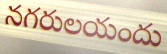
నగరులయందు